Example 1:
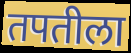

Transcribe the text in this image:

तपतीला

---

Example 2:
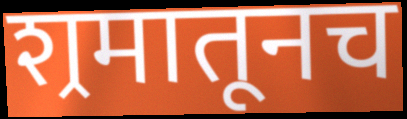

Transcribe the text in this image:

श्रमातूनच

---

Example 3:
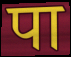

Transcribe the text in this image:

पा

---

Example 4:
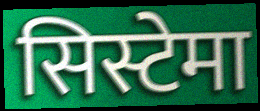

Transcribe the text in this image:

सिस्टेमा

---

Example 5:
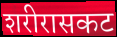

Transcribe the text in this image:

शरीरासकट